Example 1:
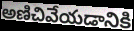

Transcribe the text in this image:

అణిచివేయడానికి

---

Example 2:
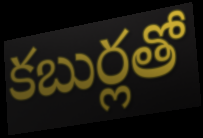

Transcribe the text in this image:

కబుర్లతో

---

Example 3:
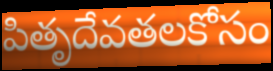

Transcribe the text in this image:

పితృదేవతలకోసం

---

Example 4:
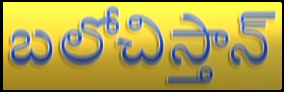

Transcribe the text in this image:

బలోచిస్తాన్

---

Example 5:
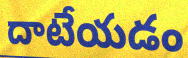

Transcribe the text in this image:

దాటేయడం